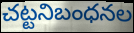
చట్టనిబంధనల